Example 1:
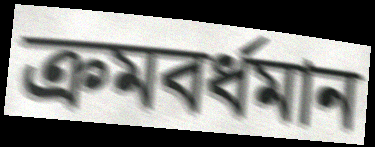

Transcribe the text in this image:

ক্রমবর্ধমান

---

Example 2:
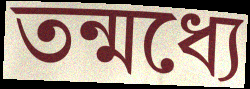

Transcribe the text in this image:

তন্মধ্যে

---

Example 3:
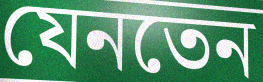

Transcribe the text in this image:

যেনতেন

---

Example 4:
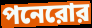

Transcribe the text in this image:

পনেরোর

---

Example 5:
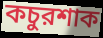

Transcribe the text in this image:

কচুরশাক